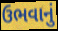
ઉભવાનું